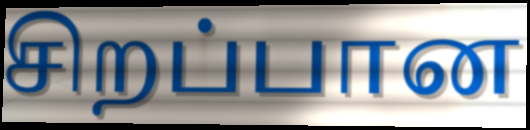
சிறப்பான